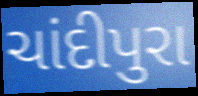
ચાંદીપુરા